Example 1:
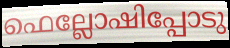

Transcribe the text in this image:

ഫെല്ലോഷിപ്പോടു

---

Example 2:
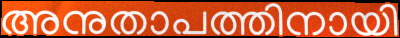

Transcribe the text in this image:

അനുതാപത്തിനായി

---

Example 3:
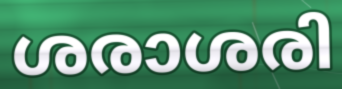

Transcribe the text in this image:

ശരാശരി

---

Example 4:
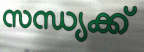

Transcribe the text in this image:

സന്ധ്യക്ക്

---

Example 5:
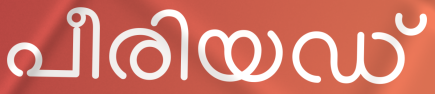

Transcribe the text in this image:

പീരിയഡ്